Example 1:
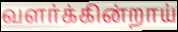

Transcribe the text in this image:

வளர்க்கின்றாய்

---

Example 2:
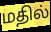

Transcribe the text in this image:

மதில்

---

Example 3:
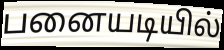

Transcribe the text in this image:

பனையடியில்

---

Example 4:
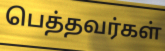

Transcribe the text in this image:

பெத்தவர்கள்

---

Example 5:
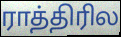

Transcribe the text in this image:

ராத்திரில